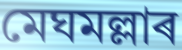
মেঘমল্লাৰ